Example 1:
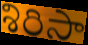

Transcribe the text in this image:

శిరిసా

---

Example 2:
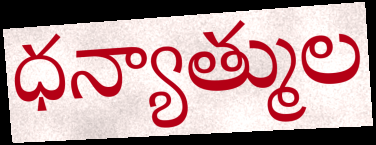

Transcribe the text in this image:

ధన్యాత్ముల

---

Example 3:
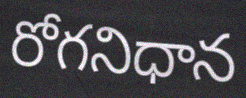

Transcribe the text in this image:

రోగనిధాన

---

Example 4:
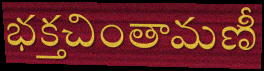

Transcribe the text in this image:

భక్తచింతామణీ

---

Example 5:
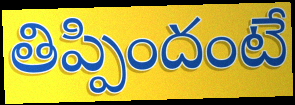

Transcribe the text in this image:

తిప్పిందంటే